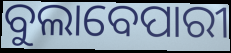
ବୁଲାବେପାରୀ